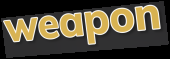
weapon